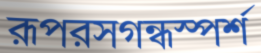
রূপরসগন্ধস্পর্শ